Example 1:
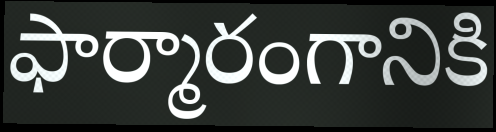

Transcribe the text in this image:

ఫార్మారంగానికి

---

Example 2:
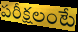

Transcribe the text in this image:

పరీక్షలంటే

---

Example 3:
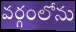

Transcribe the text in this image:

వర్గంలోను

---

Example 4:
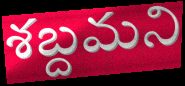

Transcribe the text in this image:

శబ్దమని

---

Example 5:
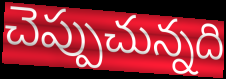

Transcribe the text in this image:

చెప్పుచున్నది